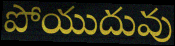
పోయుదువు